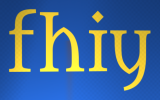
fhiy